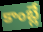
కాంబ్లే